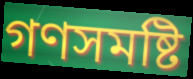
গণসমষ্টি